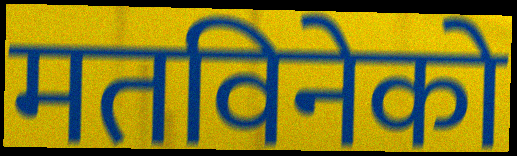
मतविनेको